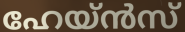
ഹേയ്ൻസ്